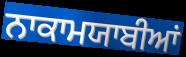
ਨਾਕਾਮਯਾਬੀਆਂ